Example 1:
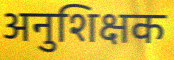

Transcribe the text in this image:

अनुशिक्षक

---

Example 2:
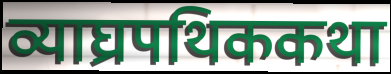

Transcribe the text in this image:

व्याघ्रपथिककथा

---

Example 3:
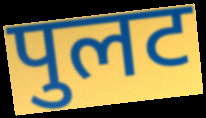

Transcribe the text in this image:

पुलट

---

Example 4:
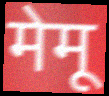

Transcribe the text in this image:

मेमू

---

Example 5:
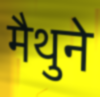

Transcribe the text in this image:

मैथुने